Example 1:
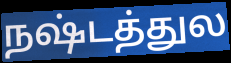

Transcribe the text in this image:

நஷ்டத்துல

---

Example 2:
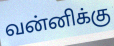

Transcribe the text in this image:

வன்னிக்கு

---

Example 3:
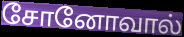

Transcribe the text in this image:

சோனோவால்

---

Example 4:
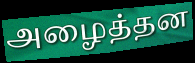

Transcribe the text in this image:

அழைத்தன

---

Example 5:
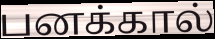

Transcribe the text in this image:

பனக்கால்